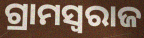
ଗ୍ରାମସ୍ବରାଜ